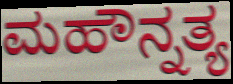
ಮಹೌನ್ನತ್ಯ